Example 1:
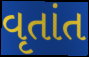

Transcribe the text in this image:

વૃતાંત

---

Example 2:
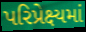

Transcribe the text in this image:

પરિપ્રેક્ષ્યમાં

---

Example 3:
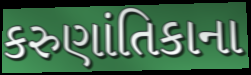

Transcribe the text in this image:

કરુણાંતિકાના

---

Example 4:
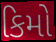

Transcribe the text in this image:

કિમો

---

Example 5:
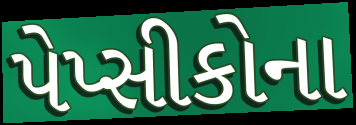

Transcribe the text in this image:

પેપ્સીકોના